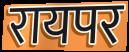
रायपर